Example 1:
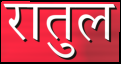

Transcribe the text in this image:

रातुल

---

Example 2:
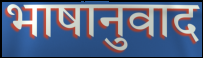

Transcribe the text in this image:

भाषानुवाद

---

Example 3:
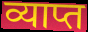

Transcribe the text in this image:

व्‍याप्‍त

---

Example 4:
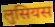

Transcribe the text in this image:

लुसियस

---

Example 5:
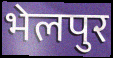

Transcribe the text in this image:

भेलपुर